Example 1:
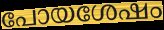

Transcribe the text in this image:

പോയശേഷം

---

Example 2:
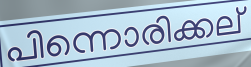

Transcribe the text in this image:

പിന്നൊരിക്കല്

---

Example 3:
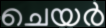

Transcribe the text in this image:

ചെയർ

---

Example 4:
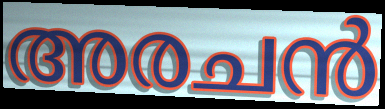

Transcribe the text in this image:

അരചൻ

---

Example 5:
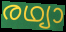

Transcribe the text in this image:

രഥ്യാ